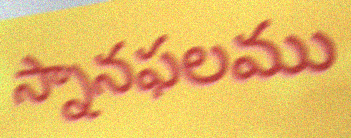
స్నానఫలము